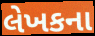
લેખકના